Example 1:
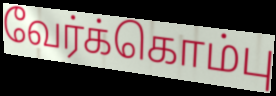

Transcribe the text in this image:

வேர்க்கொம்பு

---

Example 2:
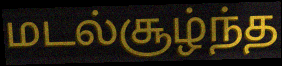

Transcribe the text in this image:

மடல்சூழ்ந்த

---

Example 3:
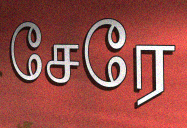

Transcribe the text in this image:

சேரே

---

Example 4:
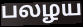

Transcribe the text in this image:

பலழய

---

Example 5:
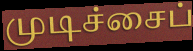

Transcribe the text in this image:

முடிச்சைப்